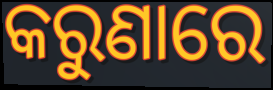
କରୁଣାରେ